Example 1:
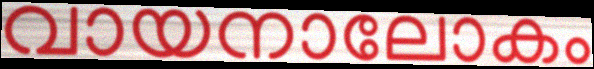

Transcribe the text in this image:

വായനാലോകം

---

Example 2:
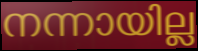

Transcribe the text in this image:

നന്നായില്ല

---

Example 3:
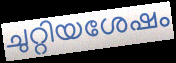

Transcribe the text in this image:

ചുറ്റിയശേഷം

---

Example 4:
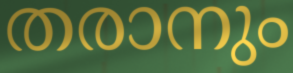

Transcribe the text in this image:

തരാനും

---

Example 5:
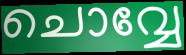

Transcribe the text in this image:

ചൊവ്വേ